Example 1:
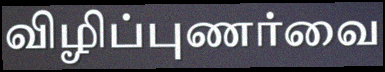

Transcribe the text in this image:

விழிப்புணர்வை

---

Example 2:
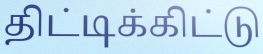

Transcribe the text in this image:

திட்டிக்கிட்டு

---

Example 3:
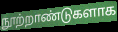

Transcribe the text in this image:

நூற்றாண்டுகளாக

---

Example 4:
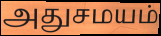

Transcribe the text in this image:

அதுசமயம்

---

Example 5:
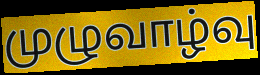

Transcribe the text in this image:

முழுவாழ்வு